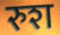
रुश